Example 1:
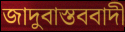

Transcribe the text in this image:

জাদুবাস্তববাদী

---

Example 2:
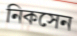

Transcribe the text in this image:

নিকসেন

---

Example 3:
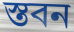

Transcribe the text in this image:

স্তবন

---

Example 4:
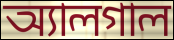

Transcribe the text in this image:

অ্যালগাল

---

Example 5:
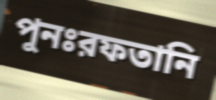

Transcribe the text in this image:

পুনঃরফতানি